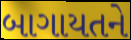
બાગાયતને